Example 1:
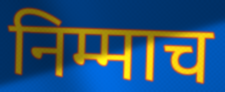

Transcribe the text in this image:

निम्माच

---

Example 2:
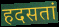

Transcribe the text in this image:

हदसतां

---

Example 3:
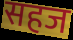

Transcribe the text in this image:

सहज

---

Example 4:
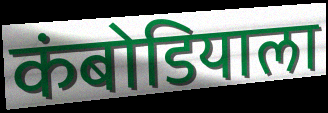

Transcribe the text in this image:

कंबोडियाला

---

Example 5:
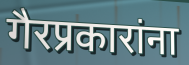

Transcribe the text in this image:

गैरप्रकारांना